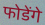
फोडेंगे